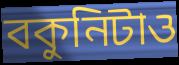
বকুনিটাও